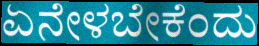
ಏನೇಳಬೇಕೆಂದು